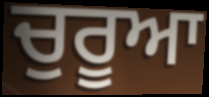
ਚੁਰੂਆ